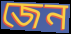
জেন